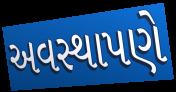
અવસ્થાપણે